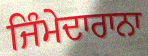
ਜਿੰਮੇਦਾਰਾਨਾ